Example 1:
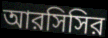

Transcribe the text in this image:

আরসিসির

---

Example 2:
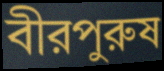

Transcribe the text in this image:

বীরপুরুষ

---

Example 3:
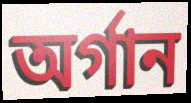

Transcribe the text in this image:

অর্গান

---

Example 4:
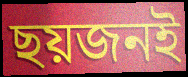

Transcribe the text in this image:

ছয়জনই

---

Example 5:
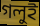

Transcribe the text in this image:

গলুই